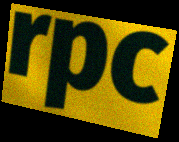
rpc